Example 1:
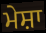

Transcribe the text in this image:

ਮੇਸ਼ਾ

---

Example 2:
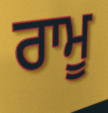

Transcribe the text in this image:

ਰਾਮੂ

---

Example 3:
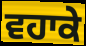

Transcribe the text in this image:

ਵਹਾਕੇ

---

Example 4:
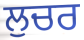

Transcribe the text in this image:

ਲੁਚਰ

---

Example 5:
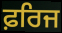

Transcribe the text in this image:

ਫ਼ਰਿਜ